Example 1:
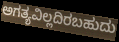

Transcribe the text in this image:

ಅಗತ್ಯವಿಲ್ಲದಿರಬಹುದು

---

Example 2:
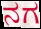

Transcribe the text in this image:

ನಗ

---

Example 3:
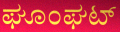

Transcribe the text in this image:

ಘೂಂಘಟ್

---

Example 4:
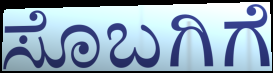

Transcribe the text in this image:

ಸೊಬಗಿಗೆ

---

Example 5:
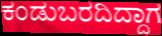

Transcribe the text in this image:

ಕಂಡುಬರದಿದ್ದಾಗ